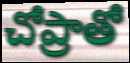
చోప్రాతో